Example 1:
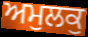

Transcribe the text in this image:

ਅਮੁਲਕੁ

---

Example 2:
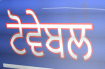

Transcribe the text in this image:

ਟੋਵੇਬਲ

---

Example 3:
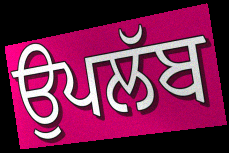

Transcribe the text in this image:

ਉਪਲੱਬ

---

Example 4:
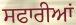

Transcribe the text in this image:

ਸਫਾਰੀਆਂ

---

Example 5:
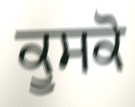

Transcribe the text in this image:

ਕੂਸਕੋ